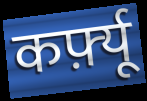
कर्फ़्यू